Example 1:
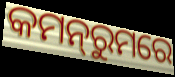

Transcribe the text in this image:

କମନ୍‌ରୁମରେ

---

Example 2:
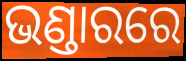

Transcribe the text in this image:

ଭଣ୍ଡାରରେ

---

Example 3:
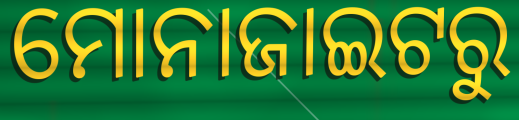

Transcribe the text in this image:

ମୋନାଜାଇଟରୁ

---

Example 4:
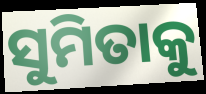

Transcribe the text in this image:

ସୁମିତାକୁ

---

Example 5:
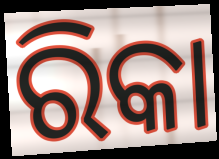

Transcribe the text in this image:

ରିକା